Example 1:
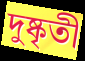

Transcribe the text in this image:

দুষ্কৃতী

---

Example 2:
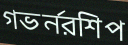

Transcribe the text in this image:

গভর্নরশিপ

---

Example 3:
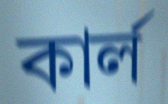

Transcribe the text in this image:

কার্ল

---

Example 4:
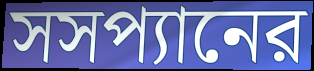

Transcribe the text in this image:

সসপ্যানের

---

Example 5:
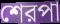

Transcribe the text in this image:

শেরপা